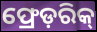
ଫ୍ରେଡ଼ରିକ୍